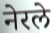
नेरले